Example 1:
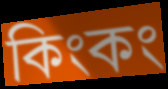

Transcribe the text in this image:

কিংকং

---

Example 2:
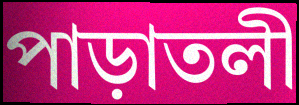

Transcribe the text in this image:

পাড়াতলী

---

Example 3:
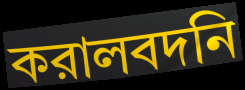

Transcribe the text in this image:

করালবদনি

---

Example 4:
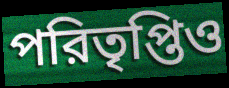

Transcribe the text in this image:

পরিতৃপ্তিও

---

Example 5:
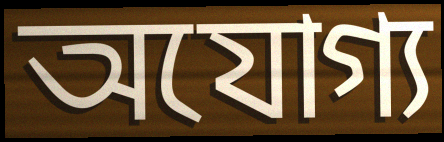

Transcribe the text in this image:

অযোগ্য